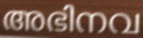
അഭിനവ